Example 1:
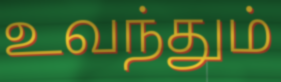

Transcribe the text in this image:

உவந்தும்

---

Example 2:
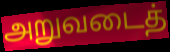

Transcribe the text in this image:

அறுவடைத்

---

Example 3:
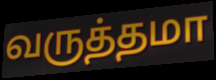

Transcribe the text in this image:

வருத்தமா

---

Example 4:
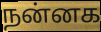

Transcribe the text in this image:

நன்னக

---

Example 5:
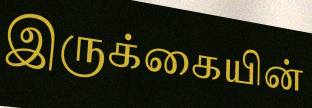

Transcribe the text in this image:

இருக்கையின்